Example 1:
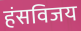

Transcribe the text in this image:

हंसविजय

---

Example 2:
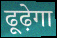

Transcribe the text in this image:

ढूढ़ेगा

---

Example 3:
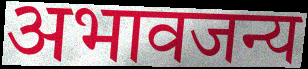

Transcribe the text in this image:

अभावजन्य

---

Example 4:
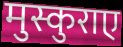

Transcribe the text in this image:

मुस्कुराए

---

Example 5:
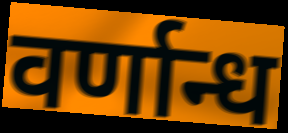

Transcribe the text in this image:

वर्णान्ध